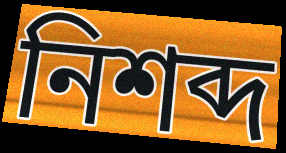
নিশব্দ